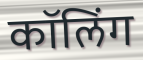
कॉलिंग